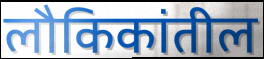
लौकिकांतील